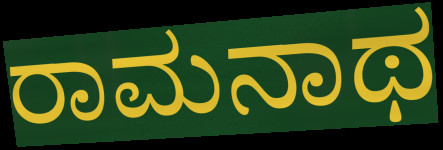
ರಾಮನಾಥ